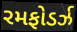
રમફોડર્ઝ